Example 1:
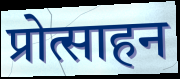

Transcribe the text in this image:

प्रोत्‍साहन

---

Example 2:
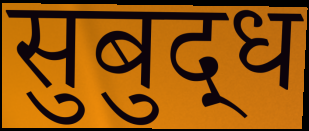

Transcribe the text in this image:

सुबुद्ध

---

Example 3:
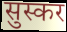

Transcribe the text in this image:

सुस्कर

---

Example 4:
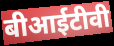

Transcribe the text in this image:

बीआईटीवी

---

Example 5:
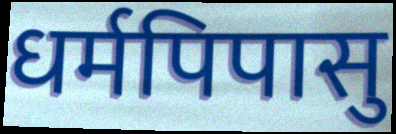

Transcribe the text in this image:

धर्मपिपासु